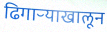
ढिगाऱ्याखालून